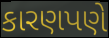
કારણપણે